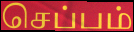
செப்பம்